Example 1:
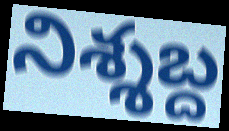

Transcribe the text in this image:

నిశ్శబ్ద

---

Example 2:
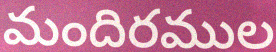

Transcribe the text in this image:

మందిరముల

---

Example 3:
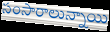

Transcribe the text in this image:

సంసారాలున్నాయి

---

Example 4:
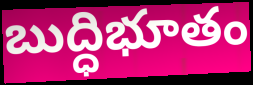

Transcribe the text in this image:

బుద్ధిభూతం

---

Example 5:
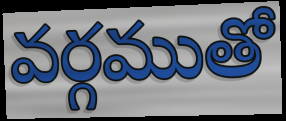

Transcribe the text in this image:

వర్గముతో